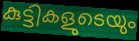
കുട്ടികളുടെയും